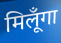
मिलूँगा